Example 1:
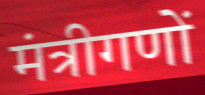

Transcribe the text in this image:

मंत्रीगणों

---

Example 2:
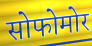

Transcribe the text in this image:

सोफोमोर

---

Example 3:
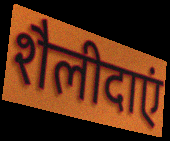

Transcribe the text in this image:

शैलीदाएं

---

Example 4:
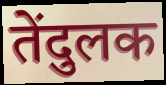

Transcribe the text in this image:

तेंदुलक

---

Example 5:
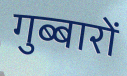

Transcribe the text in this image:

गुब्बारों